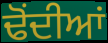
ਢੋਂਦੀਆਂ